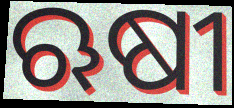
ଋଷୀ